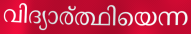
വിദ്യാര്ത്ഥിയെന്ന